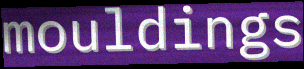
mouldings